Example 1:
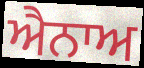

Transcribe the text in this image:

ਐਨਾਅ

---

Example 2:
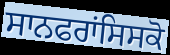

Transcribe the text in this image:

ਸਾਨਫਰਾਂਸਿਸਕੋ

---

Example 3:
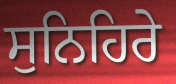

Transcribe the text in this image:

ਸੁਨਿਹਿਰੇ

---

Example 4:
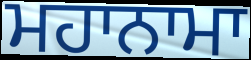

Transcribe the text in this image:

ਮਹਾਨਾਮਾ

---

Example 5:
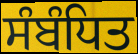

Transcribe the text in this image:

ਸੰਬੰਧਿਤ